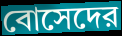
বোসেদের